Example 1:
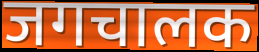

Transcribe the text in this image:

जगचालक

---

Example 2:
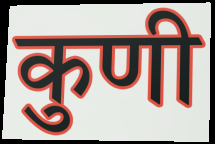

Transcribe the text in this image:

कुणी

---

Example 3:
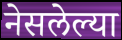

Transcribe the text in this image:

नेसलेल्या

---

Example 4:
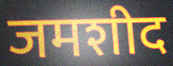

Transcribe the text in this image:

जमशीद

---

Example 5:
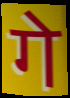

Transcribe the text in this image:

गे